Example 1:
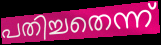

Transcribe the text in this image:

പതിച്ചതെന്ന്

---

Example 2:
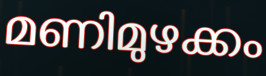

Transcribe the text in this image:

മണിമുഴക്കം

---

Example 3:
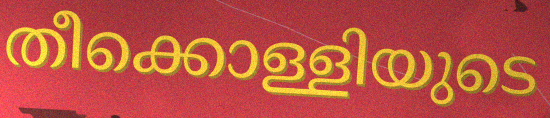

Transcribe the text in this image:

തീക്കൊള്ളിയുടെ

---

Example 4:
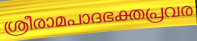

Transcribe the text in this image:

ശ്രീരാമപാദഭക്തപ്രവര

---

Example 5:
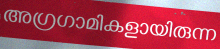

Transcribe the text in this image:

അഗ്രഗാമികളായിരുന്ന